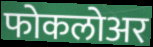
फोकलोअर